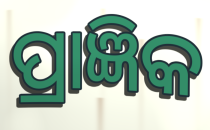
ପ୍ରାଜ୍ଞିକ